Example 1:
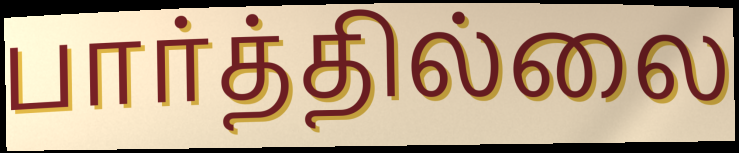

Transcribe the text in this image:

பார்த்தில்லை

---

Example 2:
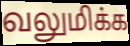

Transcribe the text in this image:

வலுமிக்க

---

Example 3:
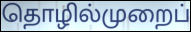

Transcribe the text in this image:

தொழில்முறைப்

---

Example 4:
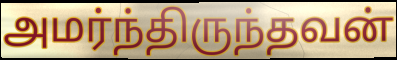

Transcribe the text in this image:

அமர்ந்திருந்தவன்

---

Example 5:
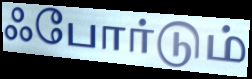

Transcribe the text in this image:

ஃபோர்டும்